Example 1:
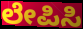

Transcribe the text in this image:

ಲೇಪಿಸಿ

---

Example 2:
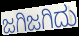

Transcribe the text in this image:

ಜಗಿಜಗಿದು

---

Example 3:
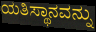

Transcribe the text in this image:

ಯತಿಸ್ಥಾನವನ್ನು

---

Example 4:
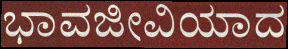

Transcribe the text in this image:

ಭಾವಜೀವಿಯಾದ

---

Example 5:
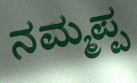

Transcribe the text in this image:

ನಮ್ಮಪ್ಪ